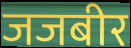
जजबीर